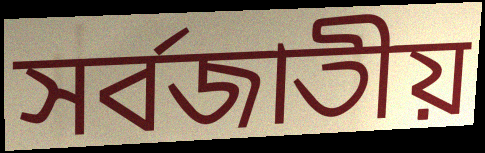
সর্বজাতীয়